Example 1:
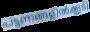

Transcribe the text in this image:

പട്ടണങ്ങളിൽക്കൂടി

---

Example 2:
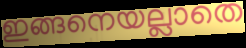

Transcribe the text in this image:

ഇങ്ങനെയല്ലാതെ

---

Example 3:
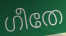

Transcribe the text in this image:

ഗീതേ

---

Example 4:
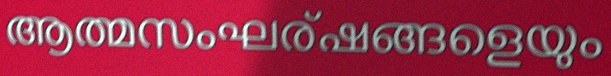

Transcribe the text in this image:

ആത്മസംഘര്ഷങ്ങളെയും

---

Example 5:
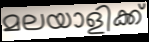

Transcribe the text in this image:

മലയാളിക്ക്